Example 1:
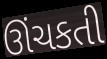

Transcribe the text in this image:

ઊંચકતી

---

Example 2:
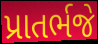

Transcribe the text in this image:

પ્રાતર્ભજે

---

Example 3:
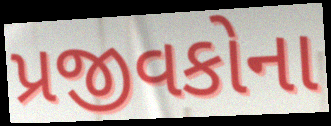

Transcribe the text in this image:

પ્રજીવકોના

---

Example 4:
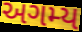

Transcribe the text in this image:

અગમ્ય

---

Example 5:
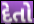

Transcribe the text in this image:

દેતો